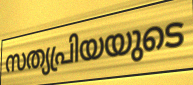
സത്യപ്രിയയുടെ